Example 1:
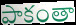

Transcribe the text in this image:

పాకంతా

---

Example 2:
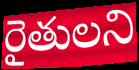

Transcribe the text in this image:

రైతులని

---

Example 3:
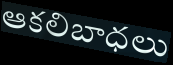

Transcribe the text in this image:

ఆకలిబాధలు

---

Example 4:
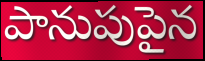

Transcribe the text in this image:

పానుపుపైన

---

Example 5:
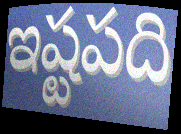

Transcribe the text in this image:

ఇష్టపది